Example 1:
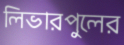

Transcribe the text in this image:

লিভারপুলের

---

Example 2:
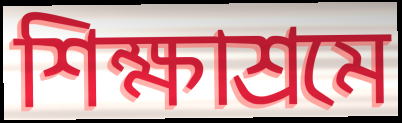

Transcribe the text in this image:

শিক্ষাশ্রমে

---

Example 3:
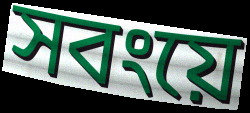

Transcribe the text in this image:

সবংয়ে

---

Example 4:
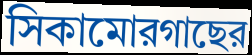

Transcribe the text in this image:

সিকামোরগাছের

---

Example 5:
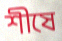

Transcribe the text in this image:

শীষে